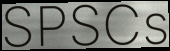
SPSCs